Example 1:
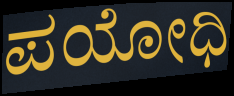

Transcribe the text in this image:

ಪಯೋಧಿ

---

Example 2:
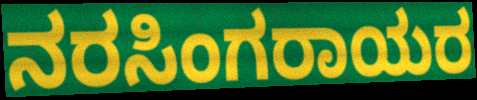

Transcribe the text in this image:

ನರಸಿಂಗರಾಯರ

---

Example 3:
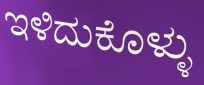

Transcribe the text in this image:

ಇಳಿದುಕೊಳ್ಳು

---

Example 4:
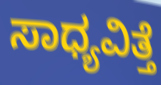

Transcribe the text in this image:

ಸಾಧ್ಯವಿತ್ತೆ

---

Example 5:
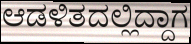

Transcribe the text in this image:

ಆಡಳಿತದಲ್ಲಿದ್ದಾಗ